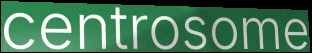
centrosome